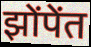
झोंपेंत